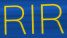
RIR